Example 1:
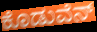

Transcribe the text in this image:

ಕೊಡುವೆನ್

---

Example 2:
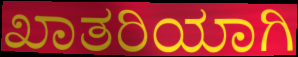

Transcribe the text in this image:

ಖಾತರಿಯಾಗಿ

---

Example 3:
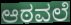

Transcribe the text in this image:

ಆಠವಲೆ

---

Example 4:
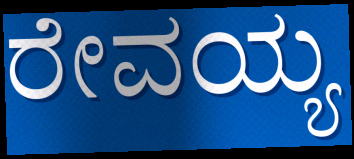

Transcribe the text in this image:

ರೇವಯ್ಯ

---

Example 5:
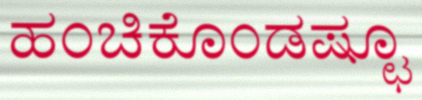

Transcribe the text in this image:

ಹಂಚಿಕೊಂಡಷ್ಟೂ